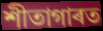
শীতাগাৰত